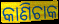
କାଣିଚାକ